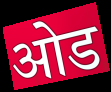
ओड